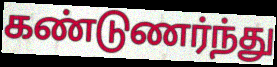
கண்டுணர்ந்து